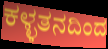
ಕಳ್ಳತನದಿಂದ